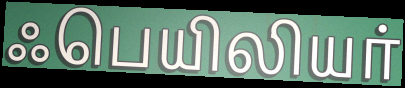
ஃபெயிலியர்